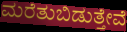
ಮರೆತುಬಿಡುತ್ತೇವೆ